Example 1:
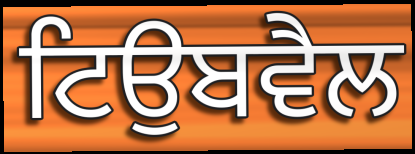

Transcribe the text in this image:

ਟਿਉਬਵੈਲ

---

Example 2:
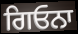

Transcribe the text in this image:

ਗਿਓਨਾ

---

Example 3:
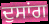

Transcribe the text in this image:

ਦੁਸਾਂਗ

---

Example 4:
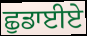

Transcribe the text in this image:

ਛੁਡਾਈਏ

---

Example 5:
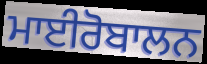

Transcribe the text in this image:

ਮਾਈਰੋਬਾਲਨ